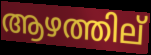
ആഴത്തില്